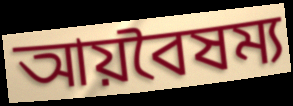
আয়বৈষম্য